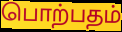
பொற்பதம்